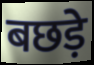
बछड़े